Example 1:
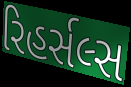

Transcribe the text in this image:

રિહર્સલ્સ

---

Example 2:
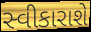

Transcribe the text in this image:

સ્વીકારાશે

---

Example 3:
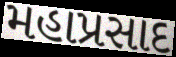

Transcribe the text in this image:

મહાપ્રસાદ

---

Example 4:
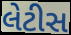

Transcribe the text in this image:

લેટીસ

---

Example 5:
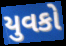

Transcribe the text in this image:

યુવકો